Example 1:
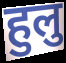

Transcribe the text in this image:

हुलु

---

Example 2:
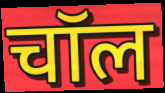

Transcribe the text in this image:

चॉल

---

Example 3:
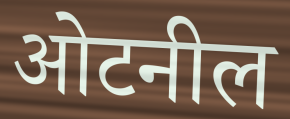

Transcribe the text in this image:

ओटनील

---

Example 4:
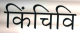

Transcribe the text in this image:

किंचिवि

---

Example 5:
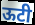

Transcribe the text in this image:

ऊटी